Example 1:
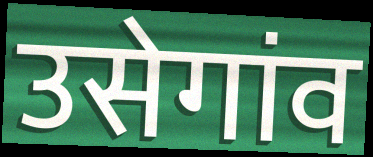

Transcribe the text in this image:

उसेगांव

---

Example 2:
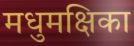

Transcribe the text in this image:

मधुमक्षिका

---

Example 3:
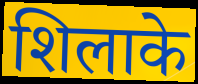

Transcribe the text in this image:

शिलाके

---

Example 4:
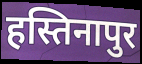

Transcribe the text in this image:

हस्तिनापुर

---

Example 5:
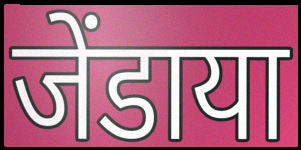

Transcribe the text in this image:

जेंडाया